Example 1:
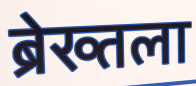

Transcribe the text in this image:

ब्रेख्तला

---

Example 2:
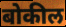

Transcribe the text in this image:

बोकील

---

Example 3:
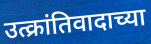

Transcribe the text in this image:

उत्क्रांतिवादाच्या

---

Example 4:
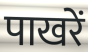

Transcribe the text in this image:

पाखरें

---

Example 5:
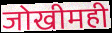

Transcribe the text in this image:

जोखीमही